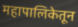
महापालिकेतून